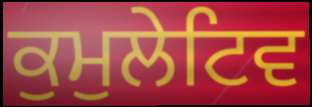
ਕੁਮੁਲੇਟਿਵ